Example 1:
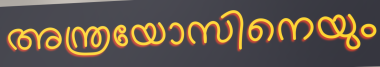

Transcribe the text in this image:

അന്ത്രയോസിനെയും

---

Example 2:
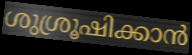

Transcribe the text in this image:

ശുശ്രൂഷിക്കാൻ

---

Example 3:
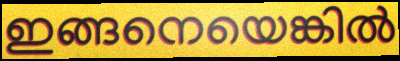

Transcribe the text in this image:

ഇങ്ങനെയെങ്കിൽ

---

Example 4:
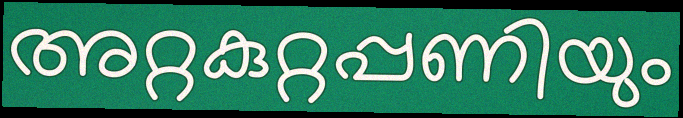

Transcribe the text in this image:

അറ്റകുറ്റപ്പണിയും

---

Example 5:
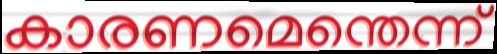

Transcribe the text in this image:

കാരണമെന്തെന്ന്